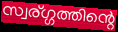
സ്വര്ഗ്ഗത്തിന്റെ